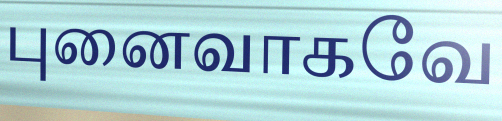
புனைவாகவே